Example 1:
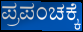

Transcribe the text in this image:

ಪ್ರಪಂಚಕ್ಕೆ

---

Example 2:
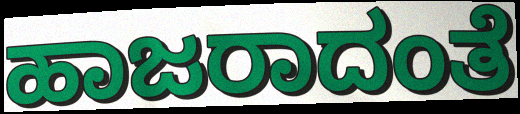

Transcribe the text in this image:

ಹಾಜರಾದಂತೆ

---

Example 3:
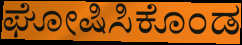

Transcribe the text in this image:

ಘೋಷಿಸಿಕೊಂಡ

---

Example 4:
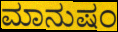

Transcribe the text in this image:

ಮಾನುಷಂ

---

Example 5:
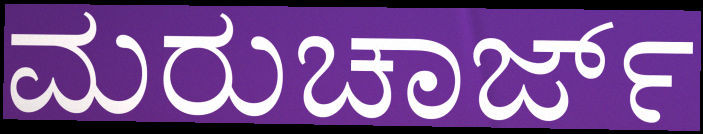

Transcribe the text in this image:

ಮರುಚಾರ್ಜ್